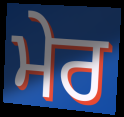
ਮੇਰ